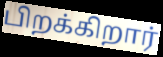
பிறக்கிறார்